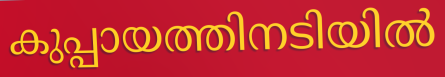
കുപ്പായത്തിനടിയിൽ